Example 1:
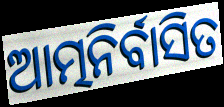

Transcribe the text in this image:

ଆତ୍ମନିର୍ବାସିତ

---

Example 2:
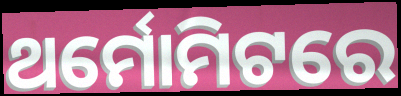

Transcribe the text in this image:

ଥର୍ମୋମିଟରେ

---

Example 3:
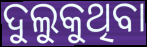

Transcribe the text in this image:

ଦୁଲୁକୁଥିବା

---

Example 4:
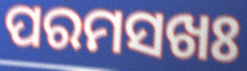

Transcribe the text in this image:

ପରମସଖଃ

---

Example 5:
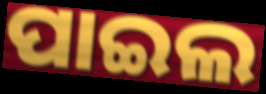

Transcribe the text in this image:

ପାଇଲ